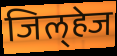
जिल्हेज